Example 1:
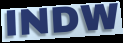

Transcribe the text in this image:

INDW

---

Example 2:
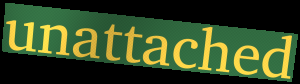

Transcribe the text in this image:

unattached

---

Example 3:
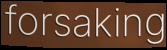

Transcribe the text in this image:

forsaking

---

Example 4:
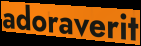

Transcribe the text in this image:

adoraverit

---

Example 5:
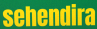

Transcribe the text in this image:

sehendira